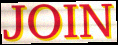
JOIN